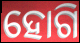
ହୋଗି